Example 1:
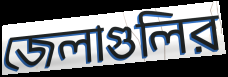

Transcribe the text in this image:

জেলাগুলির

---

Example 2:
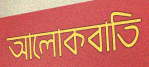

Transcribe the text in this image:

আলোকবাতি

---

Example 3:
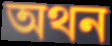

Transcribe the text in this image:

অথন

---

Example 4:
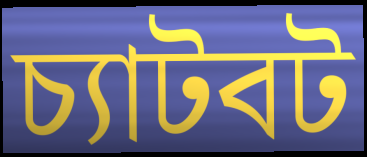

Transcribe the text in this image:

চ্যাটবট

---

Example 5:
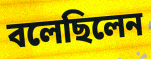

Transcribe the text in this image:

বলেছিলেন